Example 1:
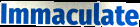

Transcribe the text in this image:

Immaculate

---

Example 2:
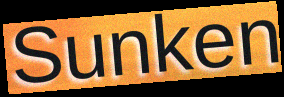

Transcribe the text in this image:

Sunken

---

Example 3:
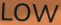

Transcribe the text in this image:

LOW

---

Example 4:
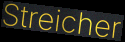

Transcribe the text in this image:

Streicher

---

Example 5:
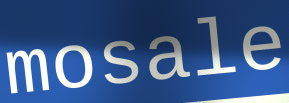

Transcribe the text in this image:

mosale